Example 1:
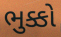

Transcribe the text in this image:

ભુક્કો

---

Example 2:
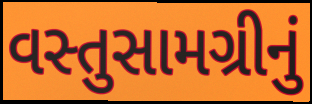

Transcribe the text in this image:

વસ્તુસામગ્રીનું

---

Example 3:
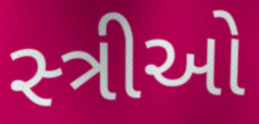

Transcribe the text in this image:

સ્‍ત્રીઓ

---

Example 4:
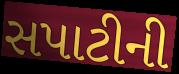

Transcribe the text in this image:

સપાટીની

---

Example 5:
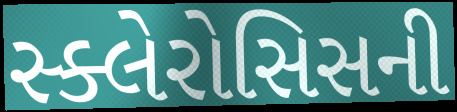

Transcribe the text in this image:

સ્ક્લેરોસિસની